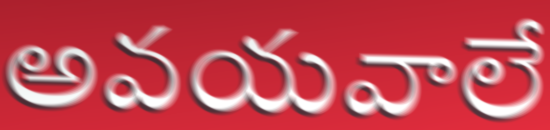
అవయవాలే